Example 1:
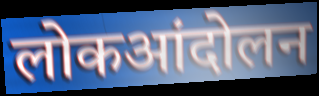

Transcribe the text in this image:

लोकआंदोलन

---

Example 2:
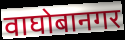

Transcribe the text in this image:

वाघोबानगर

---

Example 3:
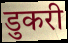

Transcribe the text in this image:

डुकरी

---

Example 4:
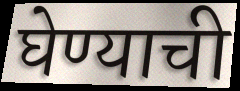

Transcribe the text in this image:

घेण्याची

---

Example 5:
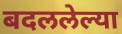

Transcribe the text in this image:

बदललेल्या